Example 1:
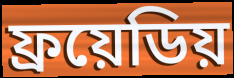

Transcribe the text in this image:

ফ্রয়েডিয়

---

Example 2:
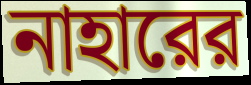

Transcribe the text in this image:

নাহারের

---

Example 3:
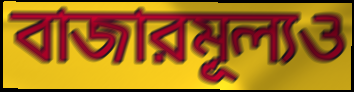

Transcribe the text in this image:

বাজারমূল্যও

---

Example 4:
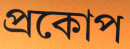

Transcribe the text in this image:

প্রকোপ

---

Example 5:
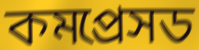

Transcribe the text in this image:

কমপ্রেসড